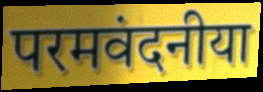
परमवंदनीया